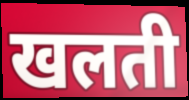
खलती